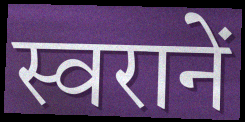
स्वरानें